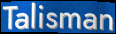
Talisman